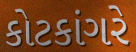
કોટકાંગરે